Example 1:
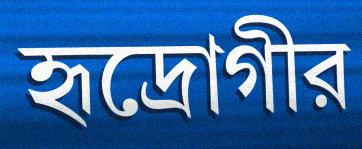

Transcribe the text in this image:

হৃদ্রোগীর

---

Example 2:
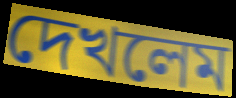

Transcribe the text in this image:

দেখলেম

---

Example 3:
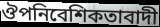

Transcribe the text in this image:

ঔপনিবেশিকতাবাদী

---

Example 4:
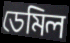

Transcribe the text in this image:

ডেমিল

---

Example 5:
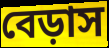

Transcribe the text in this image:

বেড়াস